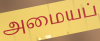
அமையப்